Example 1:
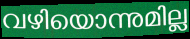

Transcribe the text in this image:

വഴിയൊന്നുമില്ല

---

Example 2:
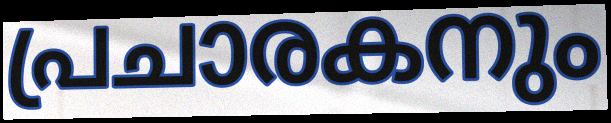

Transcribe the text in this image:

പ്രചാരകനും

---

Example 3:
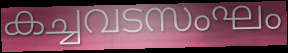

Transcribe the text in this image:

കച്ചവടസംഘം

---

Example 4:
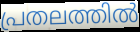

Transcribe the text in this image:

പ്രതലത്തിൽ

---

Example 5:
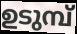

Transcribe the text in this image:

ഉടുമ്പ്